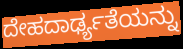
ದೇಹದಾರ್ಢ್ಯತೆಯನ್ನು